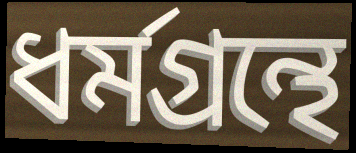
ধর্মগ্রন্থে